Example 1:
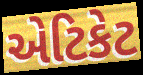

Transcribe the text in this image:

એટિકેટ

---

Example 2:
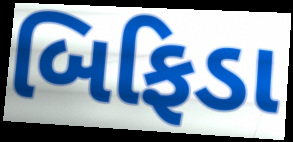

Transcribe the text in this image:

બિફિડા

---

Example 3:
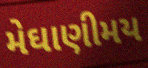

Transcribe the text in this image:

મેઘાણીમય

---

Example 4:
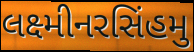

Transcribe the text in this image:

લક્ષ્મીનરસિંહમુ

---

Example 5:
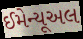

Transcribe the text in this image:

ઈમેન્યૂઅલ